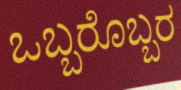
ಒಬ್ಬರೊಬ್ಬರ